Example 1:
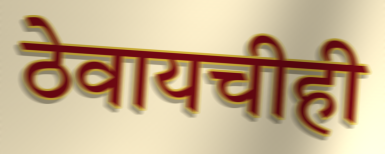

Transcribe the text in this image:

ठेवायचीही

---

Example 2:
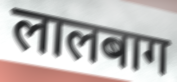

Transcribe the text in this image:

लालबाग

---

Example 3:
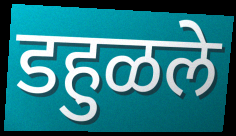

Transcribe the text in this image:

डहुळले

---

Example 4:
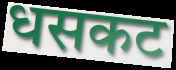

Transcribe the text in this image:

धसकट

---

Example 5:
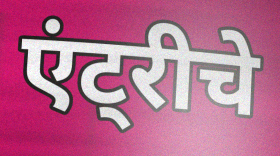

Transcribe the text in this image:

एंट्रीचे